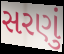
સરણું